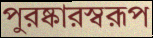
পুরষ্কারস্বরূপ